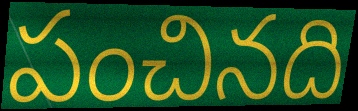
పంచినది